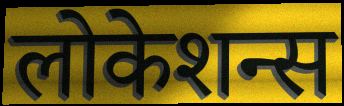
लोकेशन्स